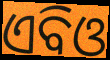
ଏବିଓ